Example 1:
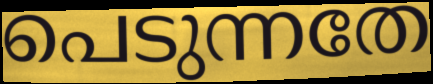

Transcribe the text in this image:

പെടുന്നതേ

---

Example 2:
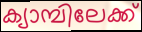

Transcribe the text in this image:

ക്യാമ്പിലേക്ക്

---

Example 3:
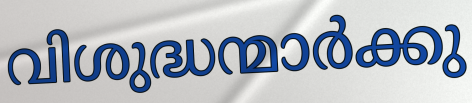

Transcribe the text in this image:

വിശുദ്ധന്മാർക്കു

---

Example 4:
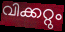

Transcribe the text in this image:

വിക്കറ്റും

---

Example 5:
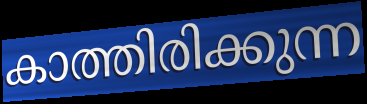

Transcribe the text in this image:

കാത്തിരിക്കുന്ന